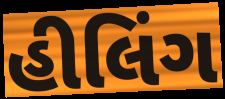
હીલિંગ